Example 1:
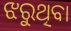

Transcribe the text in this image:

ଝରୁଥିବା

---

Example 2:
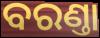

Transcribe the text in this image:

ବରଣ୍ତା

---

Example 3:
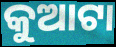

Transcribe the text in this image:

କୁଆଟା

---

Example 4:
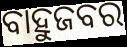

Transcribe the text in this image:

ବାହୁଜବର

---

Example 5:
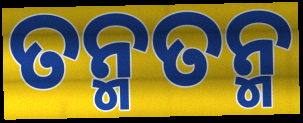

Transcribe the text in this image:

ତନ୍ମତନ୍ମ